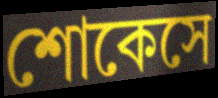
শোকেসে